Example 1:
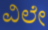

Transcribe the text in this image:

ವಿಲೇ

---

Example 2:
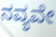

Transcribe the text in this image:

ನವ್ಯವೇ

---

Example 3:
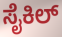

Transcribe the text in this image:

ಸೈಕಿಲ್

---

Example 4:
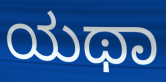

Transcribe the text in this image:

ಯಥಾ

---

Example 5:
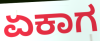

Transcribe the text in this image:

ಏಕಾಗ